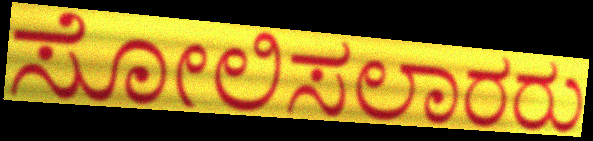
ಸೋಲಿಸಲಾರರು